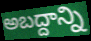
అబద్దాన్ని